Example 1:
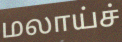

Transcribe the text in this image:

மலாய்ச்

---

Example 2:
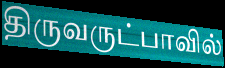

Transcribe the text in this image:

திருவருட்பாவில்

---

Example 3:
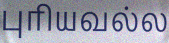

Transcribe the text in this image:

புரியவல்ல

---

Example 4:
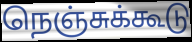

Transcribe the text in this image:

நெஞ்சுக்கூடு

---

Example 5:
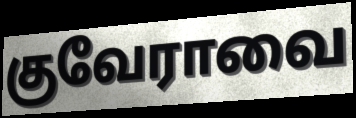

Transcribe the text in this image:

குவேராவை